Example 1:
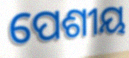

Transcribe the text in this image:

ପେଶୀୟ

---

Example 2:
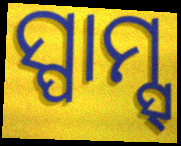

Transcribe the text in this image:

ସ୍ପାମ୍ସ୍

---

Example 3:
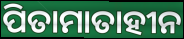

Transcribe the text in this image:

ପିତାମାତାହୀନ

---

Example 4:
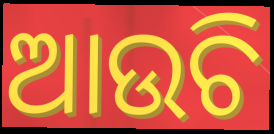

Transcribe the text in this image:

ଆଉଚି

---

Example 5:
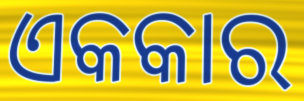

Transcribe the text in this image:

ଏକକାର